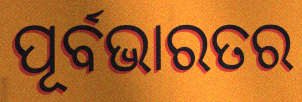
ପୂର୍ବଭାରତର